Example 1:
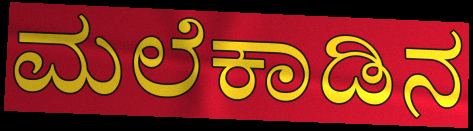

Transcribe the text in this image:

ಮಲೆಕಾಡಿನ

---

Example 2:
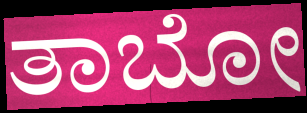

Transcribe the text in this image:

ತಾಬೋ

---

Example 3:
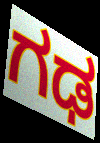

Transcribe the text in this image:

ಗಢ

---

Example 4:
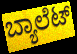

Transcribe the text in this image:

ಬ್ಯಾಲೆಟ್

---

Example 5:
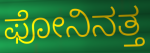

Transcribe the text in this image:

ಫೋನಿನತ್ತ